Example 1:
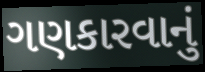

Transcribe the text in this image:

ગણકારવાનું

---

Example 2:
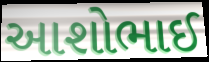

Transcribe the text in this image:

આશોભાઈ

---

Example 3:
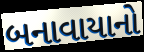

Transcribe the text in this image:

બનાવાયાનો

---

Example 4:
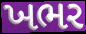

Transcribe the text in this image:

ખભર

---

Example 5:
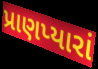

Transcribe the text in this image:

પ્રાણપ્યારાં